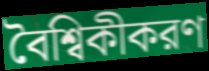
বৈশ্বিকীকরণ